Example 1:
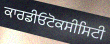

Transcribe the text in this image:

ਕਾਰਡੀਓਟੋਕਸੀਸਿਟੀ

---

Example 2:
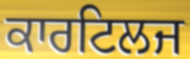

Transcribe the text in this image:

ਕਾਰਟਿਲਜ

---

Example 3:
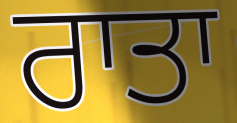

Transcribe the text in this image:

ਰਾਤਾ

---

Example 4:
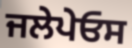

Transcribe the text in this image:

ਜਲੇਪੇਓਸ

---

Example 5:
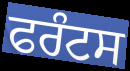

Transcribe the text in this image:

ਫਰੰਟਸ